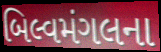
બિલ્વમંગલના